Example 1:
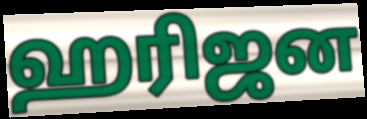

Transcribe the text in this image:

ஹரிஜன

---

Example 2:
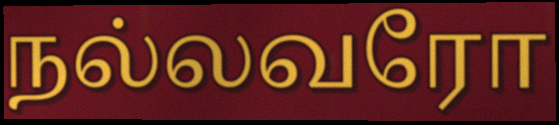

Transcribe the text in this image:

நல்லவரோ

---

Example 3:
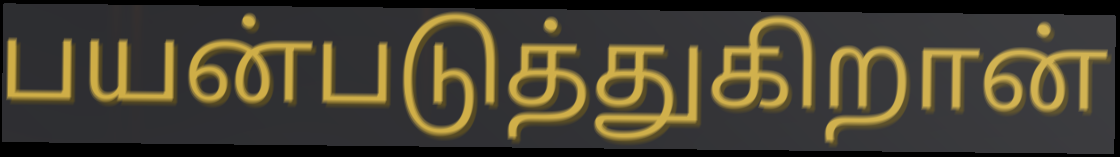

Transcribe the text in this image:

பயன்படுத்துகிறான்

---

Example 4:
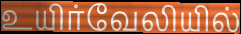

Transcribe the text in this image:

உயிர்வேலியில்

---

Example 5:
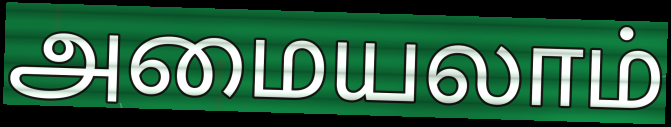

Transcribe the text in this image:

அமையலாம்